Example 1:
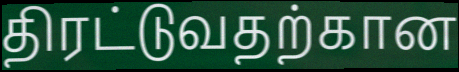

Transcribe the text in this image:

திரட்டுவதற்கான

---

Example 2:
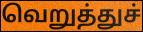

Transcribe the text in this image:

வெறுத்துச்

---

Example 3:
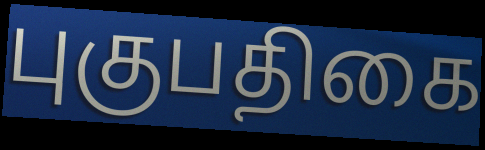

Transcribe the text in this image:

புகுபதிகை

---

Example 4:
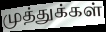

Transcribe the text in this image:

முத்துக்கள்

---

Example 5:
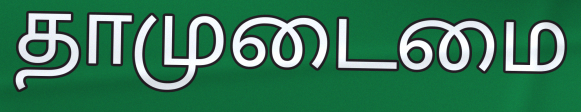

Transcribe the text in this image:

தாமுடைமை